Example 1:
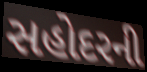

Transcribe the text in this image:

સહોદરની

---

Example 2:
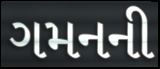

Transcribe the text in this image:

ગમનની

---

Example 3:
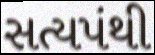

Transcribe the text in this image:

સત્યપંથી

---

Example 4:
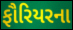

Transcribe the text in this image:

ફૌરિયરના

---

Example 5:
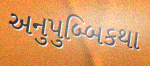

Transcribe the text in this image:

અનુપુબ્બિકથા